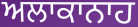
ਅਲਾਕਾਨਾਹ